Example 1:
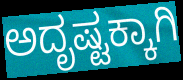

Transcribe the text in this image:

ಅದೃಷ್ಟಕ್ಕಾಗಿ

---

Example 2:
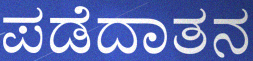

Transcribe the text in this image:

ಪಡೆದಾತನ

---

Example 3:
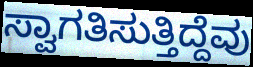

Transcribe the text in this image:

ಸ್ವಾಗತಿಸುತ್ತಿದ್ದೆವು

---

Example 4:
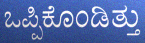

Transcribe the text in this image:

ಒಪ್ಪಿಕೊಂಡಿತ್ತು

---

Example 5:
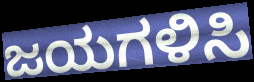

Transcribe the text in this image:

ಜಯಗಳಿಸಿ